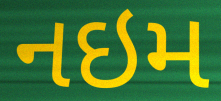
નઇમ